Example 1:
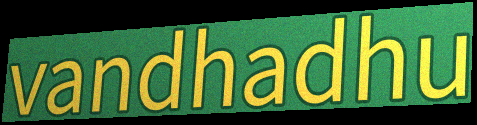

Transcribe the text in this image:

vandhadhu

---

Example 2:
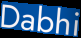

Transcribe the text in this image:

Dabhi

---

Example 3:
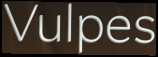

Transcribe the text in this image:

Vulpes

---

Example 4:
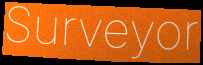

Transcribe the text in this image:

Surveyor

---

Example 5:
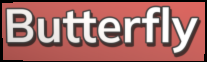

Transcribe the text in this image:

Butterfly